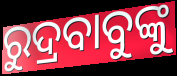
ରୁଦ୍ରବାବୁଙ୍କୁ